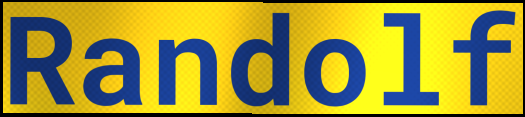
Randolf